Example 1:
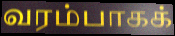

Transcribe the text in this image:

வரம்பாகக்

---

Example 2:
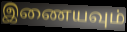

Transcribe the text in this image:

இணையவும்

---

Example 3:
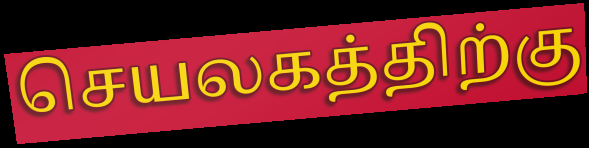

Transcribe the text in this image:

செயலகத்திற்கு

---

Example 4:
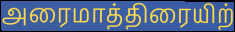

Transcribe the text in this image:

அரைமாத்திரையிற்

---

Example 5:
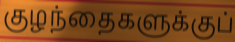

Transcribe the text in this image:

குழந்தைகளுக்குப்